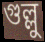
গুল্লু